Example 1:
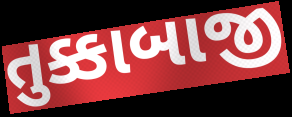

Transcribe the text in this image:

તુક્કાબાજી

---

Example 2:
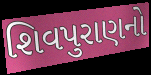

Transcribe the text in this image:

શિવપુરાણનો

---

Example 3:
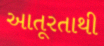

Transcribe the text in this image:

આતૂરતાથી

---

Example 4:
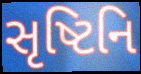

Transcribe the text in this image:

સૃષ્ટિનિ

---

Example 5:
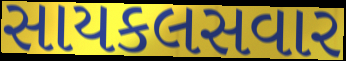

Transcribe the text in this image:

સાયકલસવાર